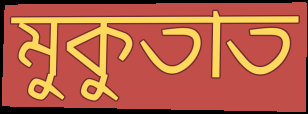
মুকুতাত